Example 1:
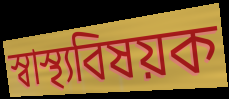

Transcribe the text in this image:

স্বাস্থ্যবিষয়ক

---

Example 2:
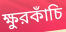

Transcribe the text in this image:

ক্ষুরকাঁচি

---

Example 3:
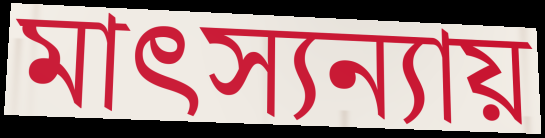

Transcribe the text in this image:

মাৎস্যন্যায়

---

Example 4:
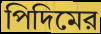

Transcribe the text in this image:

পিদিমের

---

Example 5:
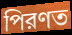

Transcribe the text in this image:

পিরণত